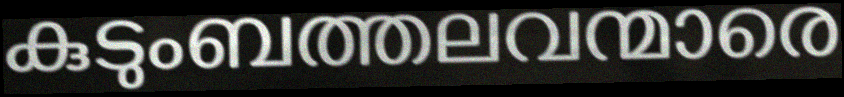
കുടുംബത്തലവന്മാരെ